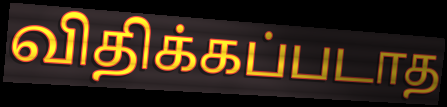
விதிக்கப்படாத